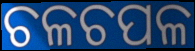
ଚଳଚପଳ